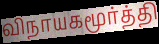
விநாயகமூர்த்தி